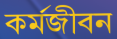
কর্মজীবন